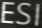
ESI